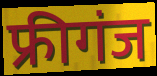
फ्रीगंज